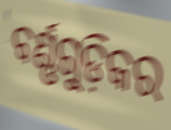
ବର୍ଣ୍ଣଗୁଡ଼ିକର